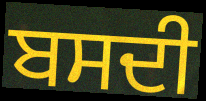
ਬਸਦੀ